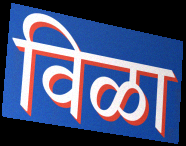
विळा